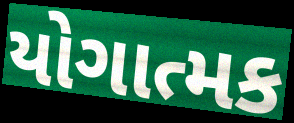
યોગાત્મક